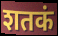
शतकं